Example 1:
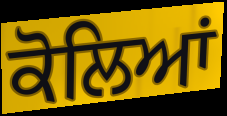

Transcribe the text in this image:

ਕੋਲਿਆਂ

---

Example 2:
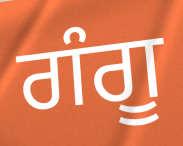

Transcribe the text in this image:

ਗੰਗੂ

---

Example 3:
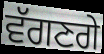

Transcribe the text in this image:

ਵੱਗਣਗੇ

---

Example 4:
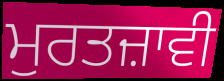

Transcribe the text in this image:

ਮੁਰਤਜ਼ਾਵੀ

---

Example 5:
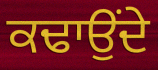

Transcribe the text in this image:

ਕਢਾਉਂਦੇ